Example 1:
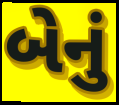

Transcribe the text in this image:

બેનું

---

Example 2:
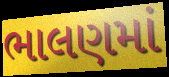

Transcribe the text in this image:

ભાલણમાં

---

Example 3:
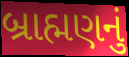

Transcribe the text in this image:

બ્રાહ્મણનું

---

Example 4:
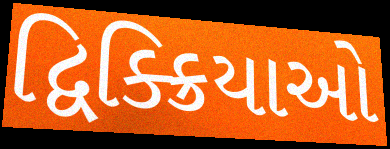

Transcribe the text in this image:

દ્વિક્ક્રિયાઓ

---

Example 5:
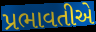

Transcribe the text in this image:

પ્રભાવતીએ